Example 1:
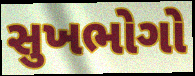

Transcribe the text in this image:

સુખભોગો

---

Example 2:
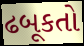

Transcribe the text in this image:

ઢબૂકતો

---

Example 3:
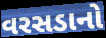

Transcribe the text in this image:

વરસડાનો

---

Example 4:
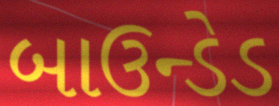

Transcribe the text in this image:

બાઉન્ડેડ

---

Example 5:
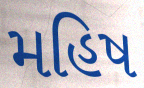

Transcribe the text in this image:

મહિષ